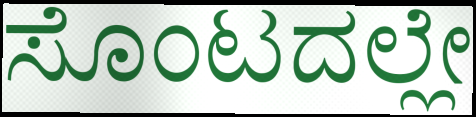
ಸೊಂಟದಲ್ಲೇ